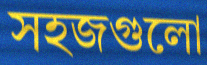
সহজগুলো